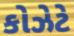
કોઝેટે